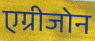
एग्रीजोन